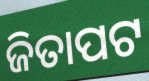
ଜିତାପଟ